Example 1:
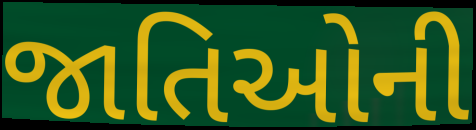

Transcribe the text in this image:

જાતિઓની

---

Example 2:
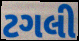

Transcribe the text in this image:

ટગલી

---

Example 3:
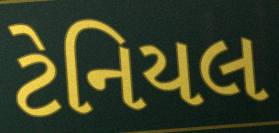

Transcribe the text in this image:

ટેનિયલ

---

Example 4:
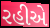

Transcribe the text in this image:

રહીએ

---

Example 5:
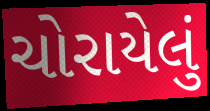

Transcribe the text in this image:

ચોરાયેલું